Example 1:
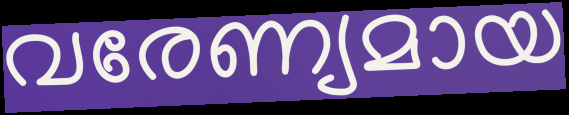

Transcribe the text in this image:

വരേണ്യമായ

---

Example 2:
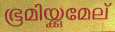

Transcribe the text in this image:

ഭൂമിയ്ക്കുമേല്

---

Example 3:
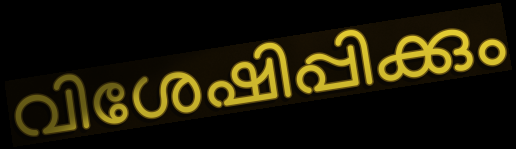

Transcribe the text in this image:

വിശേഷിപ്പിക്കും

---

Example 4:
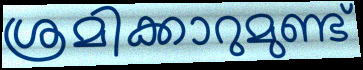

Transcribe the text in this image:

ശ്രമിക്കാറുമുണ്ട്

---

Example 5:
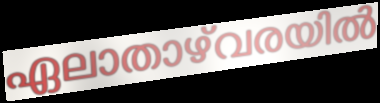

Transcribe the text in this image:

ഏലാതാഴ്‌വരയിൽ